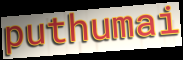
puthumai